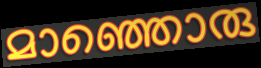
മാഞ്ഞൊരു